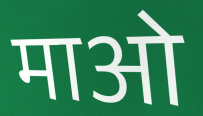
माओ